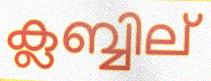
ക്ലബ്ബില്